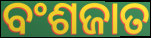
ବଂଶଜାତ